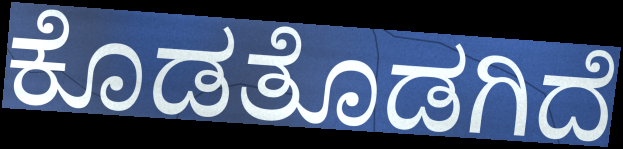
ಕೊಡತೊಡಗಿದೆ